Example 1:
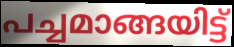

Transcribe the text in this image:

പച്ചമാങ്ങയിട്ട്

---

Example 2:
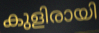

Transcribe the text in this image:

കുളിരായി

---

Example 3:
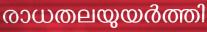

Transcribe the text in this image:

രാധതലയുയർത്തി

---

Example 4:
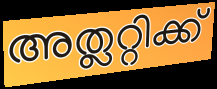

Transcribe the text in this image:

അത്ലറ്റിക്ക്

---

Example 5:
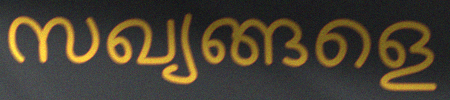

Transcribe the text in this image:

സഖ്യങ്ങളെ